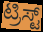
ಟ್ರಿಸ್ಟ್